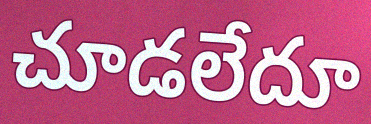
చూడలేదూ